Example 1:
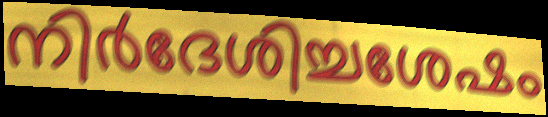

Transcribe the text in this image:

നിർദേശിച്ചശേഷം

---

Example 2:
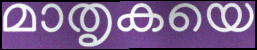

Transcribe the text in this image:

മാതൃകയെ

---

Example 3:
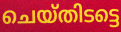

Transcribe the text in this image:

ചെയ്തിടട്ടെ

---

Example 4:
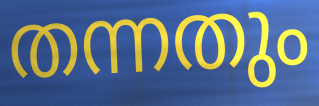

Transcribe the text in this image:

തന്നതും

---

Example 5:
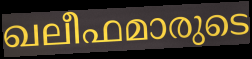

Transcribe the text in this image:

ഖലീഫമാരുടെ